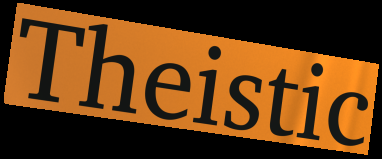
Theistic